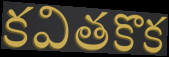
కవితకొక